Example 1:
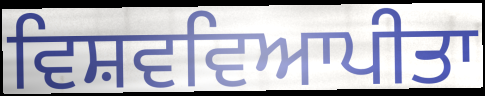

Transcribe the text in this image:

ਵਿਸ਼ਵਵਿਆਪੀਤਾ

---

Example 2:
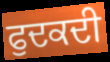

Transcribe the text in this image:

ਫੁਦਕਦੀ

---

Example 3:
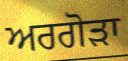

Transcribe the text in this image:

ਅਰਗੋੜਾ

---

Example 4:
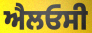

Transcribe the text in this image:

ਐਲਓਸੀ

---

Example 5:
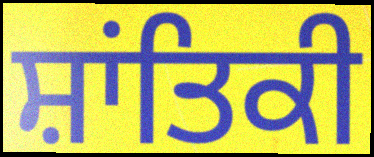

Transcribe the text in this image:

ਸ਼ਾਂਤਿਕੀ